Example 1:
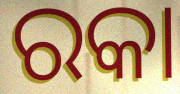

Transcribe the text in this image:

ରକା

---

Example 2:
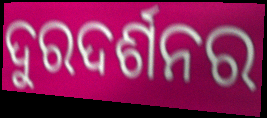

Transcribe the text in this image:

ଦୁରଦର୍ଶନର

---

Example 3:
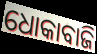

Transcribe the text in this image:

ଧୋକାବାଜି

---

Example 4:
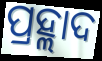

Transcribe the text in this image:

ପ୍ରହ୍ଲାଦ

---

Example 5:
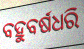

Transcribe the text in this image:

ବହୁବର୍ଷଧରି